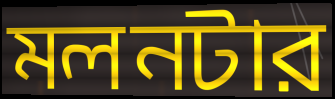
মলনটার